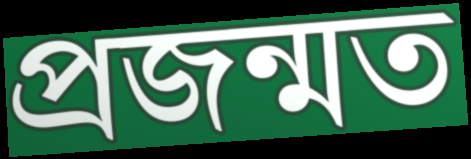
প্ৰজন্মত